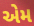
એેમ